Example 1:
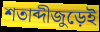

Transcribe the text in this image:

শতাব্দীজুড়েই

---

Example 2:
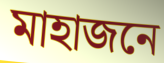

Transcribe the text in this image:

মাহাজনে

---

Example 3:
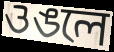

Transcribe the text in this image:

ওঙলে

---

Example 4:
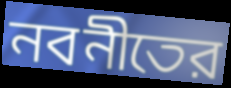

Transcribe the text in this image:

নবনীতের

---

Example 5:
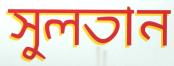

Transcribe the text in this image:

সুলতান